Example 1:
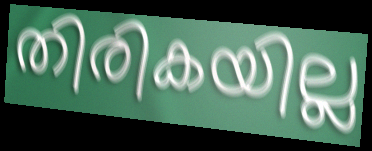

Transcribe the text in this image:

തിരികയില്ല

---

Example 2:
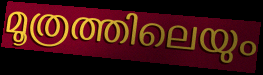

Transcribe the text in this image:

മൂത്രത്തിലെയും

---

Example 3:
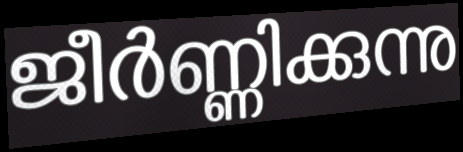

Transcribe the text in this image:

ജീർണ്ണിക്കുന്നു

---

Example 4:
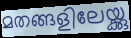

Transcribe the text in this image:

മതങ്ങളിലേയ്ക്കു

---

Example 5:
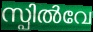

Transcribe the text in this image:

സ്പിൽവേ